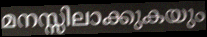
മനസ്സിലാക്കുകയും